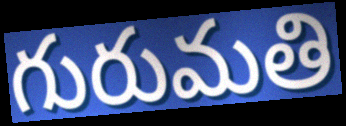
గురుమతి